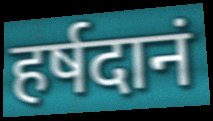
हर्षदानं